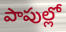
పాపుల్లో